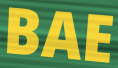
BAE